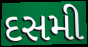
દસમી